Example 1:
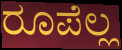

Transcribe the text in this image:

ರೂಪೆಲ್ಲ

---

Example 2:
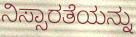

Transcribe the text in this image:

ನಿಸ್ಸಾರತೆಯನ್ನು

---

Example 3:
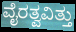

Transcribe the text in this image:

ವೈರತ್ವವಿತ್ತು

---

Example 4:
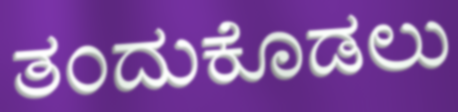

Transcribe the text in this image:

ತಂದುಕೊಡಲು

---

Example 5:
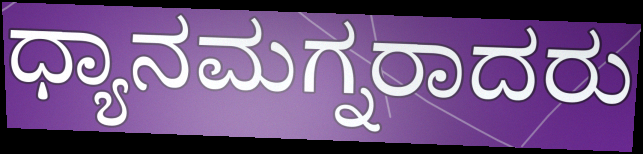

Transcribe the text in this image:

ಧ್ಯಾನಮಗ್ನರಾದರು